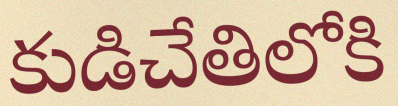
కుడిచేతిలోకి